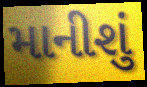
માનીશું